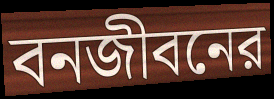
বনজীবনের